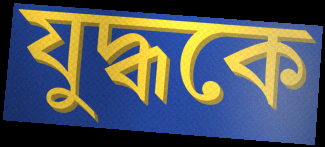
যুদ্ধকে